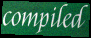
compiled